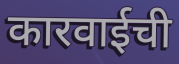
कारवाईची